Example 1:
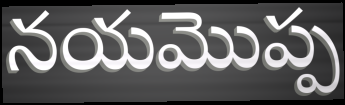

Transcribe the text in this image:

నయమొప్ప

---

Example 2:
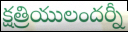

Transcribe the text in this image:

క్షత్రియులందర్నీ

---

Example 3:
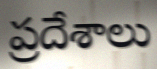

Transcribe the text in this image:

ప్రదేశాలు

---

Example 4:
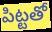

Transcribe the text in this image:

పిట్టతో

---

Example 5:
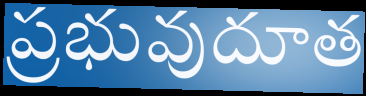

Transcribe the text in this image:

ప్రభువుదూత